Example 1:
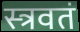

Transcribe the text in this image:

स्त्रवतं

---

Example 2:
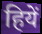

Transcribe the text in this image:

हियें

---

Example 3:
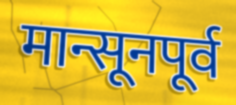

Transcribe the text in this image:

मान्सूनपूर्व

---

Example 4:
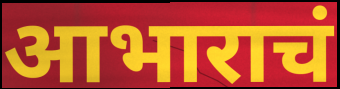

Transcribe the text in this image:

आभाराचं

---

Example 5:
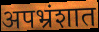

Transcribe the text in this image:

अपभ्रंशात